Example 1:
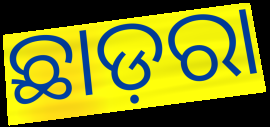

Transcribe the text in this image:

ଛାଡ଼ରା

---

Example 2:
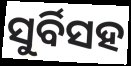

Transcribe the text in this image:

ସୁର୍ବିସହ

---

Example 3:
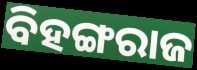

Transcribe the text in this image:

ବିହଙ୍ଗରାଜ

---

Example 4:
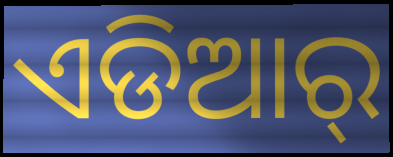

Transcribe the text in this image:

ଏଡିଆର୍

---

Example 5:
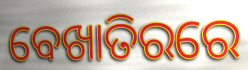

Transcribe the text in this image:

ବେଖାତିରରେ